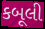
કબૂલી